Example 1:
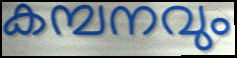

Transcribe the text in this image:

കമ്പനവും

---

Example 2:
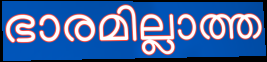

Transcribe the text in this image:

ഭാരമില്ലാത്ത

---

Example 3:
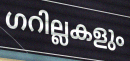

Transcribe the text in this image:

ഗറില്ലകളും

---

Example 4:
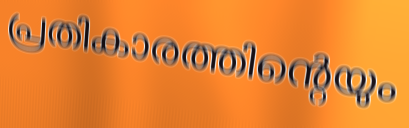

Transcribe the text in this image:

പ്രതികാരത്തിന്റെയും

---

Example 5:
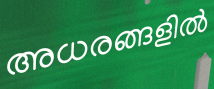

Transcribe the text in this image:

അധരങ്ങളിൽ